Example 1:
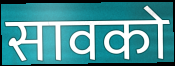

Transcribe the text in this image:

सावको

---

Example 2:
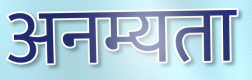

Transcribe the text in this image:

अनम्यता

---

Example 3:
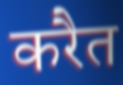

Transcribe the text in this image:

करैत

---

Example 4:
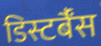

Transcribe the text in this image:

डिस्टर्बैंस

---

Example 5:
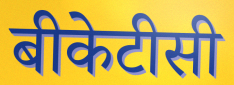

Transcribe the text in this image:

बीकेटीसी